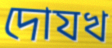
দোযখ